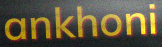
ankhoni